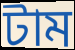
টাম